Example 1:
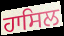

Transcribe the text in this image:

ਹਾਸਿਲ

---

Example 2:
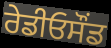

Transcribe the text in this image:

ਰੇਡੀਓਸੌਂਡ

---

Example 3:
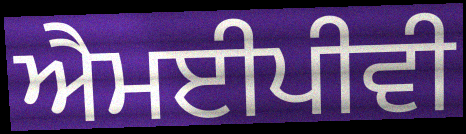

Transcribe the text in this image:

ਐਮਈਪੀਵੀ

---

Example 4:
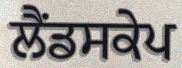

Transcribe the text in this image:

ਲੈਂਡਸਕੇਪ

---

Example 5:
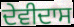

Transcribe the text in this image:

ਦੇਵੀਦਾਸ